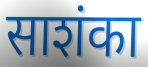
साशंका